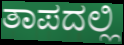
ತಾಪದಲ್ಲಿ